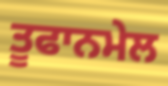
ਤੂਫਾਨਮੇਲ